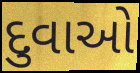
દુવાઓ